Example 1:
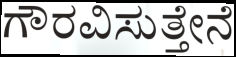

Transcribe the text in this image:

ಗೌರವಿಸುತ್ತೇನೆ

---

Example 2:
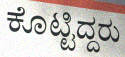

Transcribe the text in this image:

ಕೊಟ್ಟಿದ್ದರು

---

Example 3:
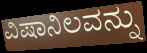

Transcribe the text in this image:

ವಿಷಾನಿಲವನ್ನು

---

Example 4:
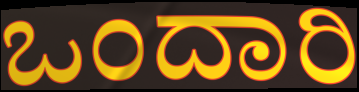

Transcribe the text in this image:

ಒಂದಾರಿ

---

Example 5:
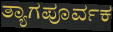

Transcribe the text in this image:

ತ್ಯಾಗಪೂರ್ವಕ